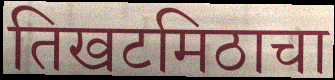
तिखटमिठाचा